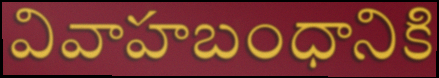
వివాహబంధానికి